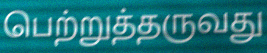
பெற்றுத்தருவது